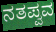
ನತಪ್ವವ